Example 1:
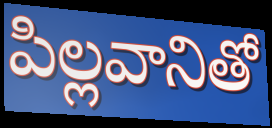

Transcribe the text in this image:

పిల్లవానితో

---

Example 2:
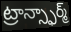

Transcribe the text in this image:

ట్రాన్స్ఫార్మ్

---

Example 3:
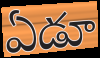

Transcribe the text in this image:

ఏడూ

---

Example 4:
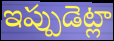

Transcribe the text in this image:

ఇప్పుడెట్లా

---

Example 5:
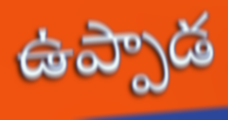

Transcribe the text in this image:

ఉప్పాడ